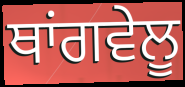
ਥਾਂਗਵੇਲੂ